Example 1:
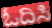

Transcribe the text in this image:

ಓದಿಸಿ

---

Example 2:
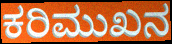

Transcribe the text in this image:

ಕರಿಮುಖನ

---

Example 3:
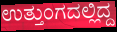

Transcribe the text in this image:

ಉತ್ತುಂಗದಲ್ಲಿದ್ದ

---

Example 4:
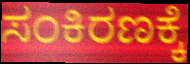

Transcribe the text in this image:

ಸಂಕಿರಣಕ್ಕೆ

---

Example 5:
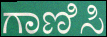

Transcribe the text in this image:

ಗಾಣಿಸಿ